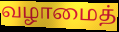
வழாமைத்